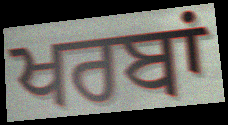
ਖਰਬਾਂ